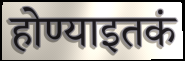
होण्याइतकं